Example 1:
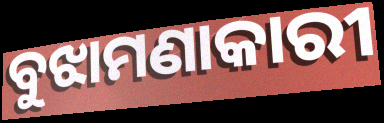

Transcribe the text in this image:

ବୁଝାମଣାକାରୀ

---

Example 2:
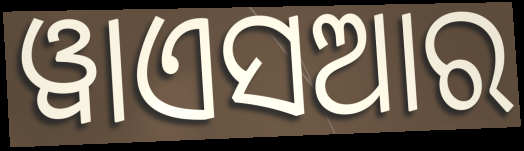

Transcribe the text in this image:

ୱାଏସଆର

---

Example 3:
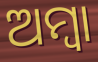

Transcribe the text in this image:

ଅମ୍ବା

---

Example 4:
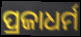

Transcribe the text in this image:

ପ୍ରଜାଧର୍ମ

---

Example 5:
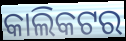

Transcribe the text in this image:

କାଲିକଟର